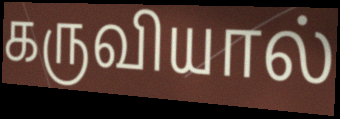
கருவியால்